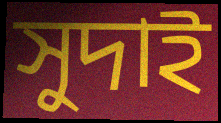
সুদাই